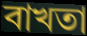
বাখতা